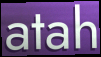
atah